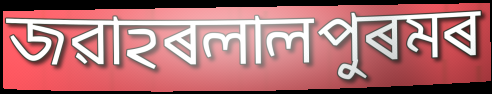
জৱাহৰলালপুৰমৰ